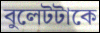
বুলেটটাকে